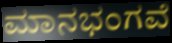
ಮಾನಭಂಗವೆ